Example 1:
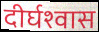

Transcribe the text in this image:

दीर्घश्वास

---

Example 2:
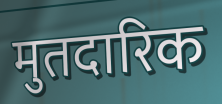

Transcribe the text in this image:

मुतदारिक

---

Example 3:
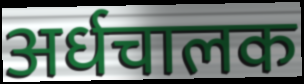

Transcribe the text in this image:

अर्धचालक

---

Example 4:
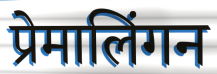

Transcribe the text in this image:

प्रेमालिंगन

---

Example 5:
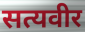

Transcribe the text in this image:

सत्यवीर